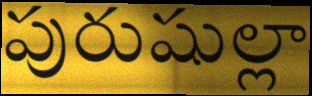
పురుషుల్లా